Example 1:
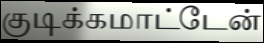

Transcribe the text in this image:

குடிக்கமாட்டேன்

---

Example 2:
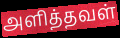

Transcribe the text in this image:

அளித்தவள்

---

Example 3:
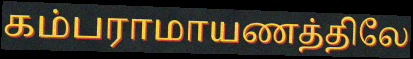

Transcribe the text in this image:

கம்பராமாயணத்திலே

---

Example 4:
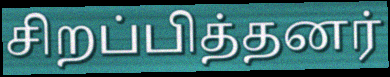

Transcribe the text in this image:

சிறப்பித்தனர்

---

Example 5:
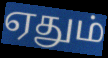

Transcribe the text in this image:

ஏதும்